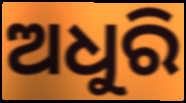
ଅଧୁରି